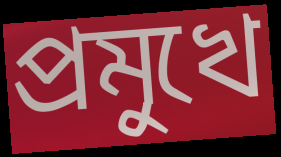
প্ৰমুখে